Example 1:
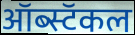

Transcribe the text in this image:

ऑब्स्टॅकल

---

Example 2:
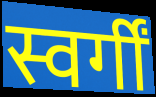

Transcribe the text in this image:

स्वर्गीं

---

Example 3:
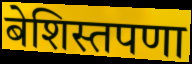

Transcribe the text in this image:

बेशिस्तपणा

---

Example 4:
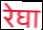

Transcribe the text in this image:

रेघा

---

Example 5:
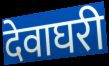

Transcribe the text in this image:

देवाघरी